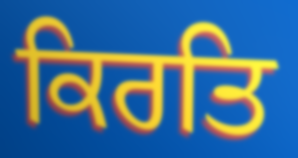
ਕਿਰਤਿ